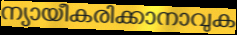
ന്യായീകരിക്കാനാവുക